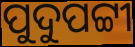
ପୁଦୁପଟ୍ଟୀ